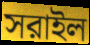
সরাইল